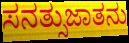
ಸನತ್ಸುಜಾತನು